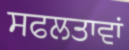
ਸਫਲਤਾਵਾਂ